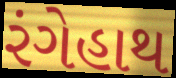
રંગેહાથ